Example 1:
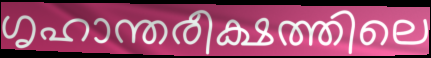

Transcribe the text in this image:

ഗൃഹാന്തരീക്ഷത്തിലെ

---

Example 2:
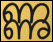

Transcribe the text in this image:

ണ്ണു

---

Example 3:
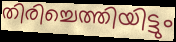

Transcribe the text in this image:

തിരിച്ചെത്തിയിട്ടും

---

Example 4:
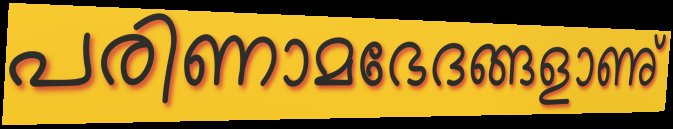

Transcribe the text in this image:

പരിണാമഭേദങ്ങളാണു്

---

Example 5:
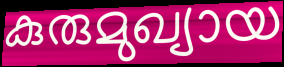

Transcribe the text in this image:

കുരുമുഖ്യായ